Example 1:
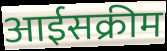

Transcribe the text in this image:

आईसक्रीम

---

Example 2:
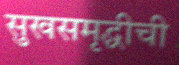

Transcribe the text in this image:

सुखसमृद्धीची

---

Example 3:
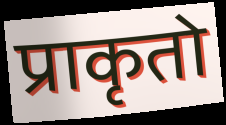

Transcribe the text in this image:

प्राकृतो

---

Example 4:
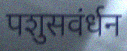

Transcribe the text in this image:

पशुसवंर्धन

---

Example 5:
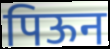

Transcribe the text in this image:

पिऊन